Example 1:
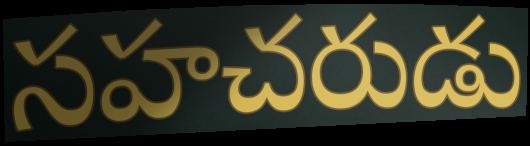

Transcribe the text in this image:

సహచరుడు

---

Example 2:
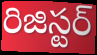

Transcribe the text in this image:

రిజిస్టర్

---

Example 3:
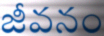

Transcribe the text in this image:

జీవనం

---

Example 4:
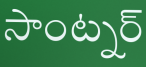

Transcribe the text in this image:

సాంట్నర్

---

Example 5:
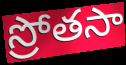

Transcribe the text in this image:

స్రోతసా